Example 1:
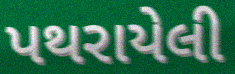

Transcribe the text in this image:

પથરાયેલી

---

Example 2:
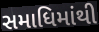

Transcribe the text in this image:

સમાધિમાંથી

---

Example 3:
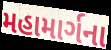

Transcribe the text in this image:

મહામાર્ગના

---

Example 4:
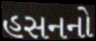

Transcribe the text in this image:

હસનનો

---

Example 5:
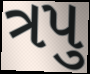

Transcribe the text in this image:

ત્રપુ